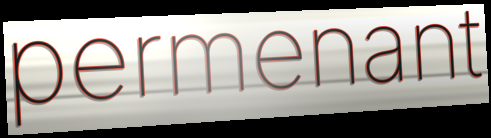
permenant